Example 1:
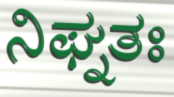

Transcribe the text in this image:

ನಿಘ್ನತಃ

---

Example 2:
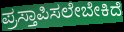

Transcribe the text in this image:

ಪ್ರಸ್ತಾಪಿಸಲೇಬೇಕಿದೆ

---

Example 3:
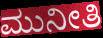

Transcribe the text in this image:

ಮುನೀತಿ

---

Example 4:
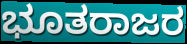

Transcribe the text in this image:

ಭೂತರಾಜರ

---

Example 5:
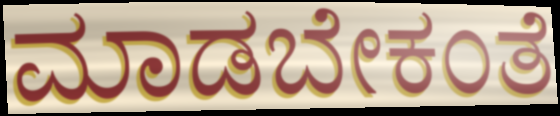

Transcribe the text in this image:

ಮಾಡಬೇಕಂತೆ